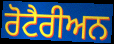
ਰੋਟੈਰੀਅਨ